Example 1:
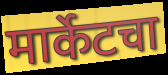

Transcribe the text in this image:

मार्केटचा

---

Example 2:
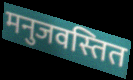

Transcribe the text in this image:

मनुजवस्तित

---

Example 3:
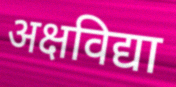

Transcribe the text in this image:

अक्षविद्या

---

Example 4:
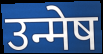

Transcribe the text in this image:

उन्मेष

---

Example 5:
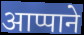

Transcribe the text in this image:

आप्पाने